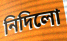
নিদিলো